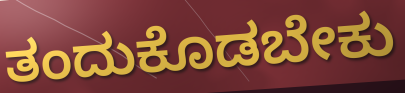
ತಂದುಕೊಡಬೇಕು